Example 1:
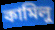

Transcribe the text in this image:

কামিলু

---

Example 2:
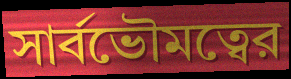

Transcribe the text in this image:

সার্বভৌমত্বের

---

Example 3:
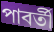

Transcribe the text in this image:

পাবর্তী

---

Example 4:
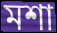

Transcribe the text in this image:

মশা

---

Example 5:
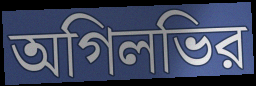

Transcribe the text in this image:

অগিলভির